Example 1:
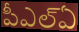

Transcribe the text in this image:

పీఎల్ఏ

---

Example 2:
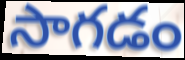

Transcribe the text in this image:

సాగడం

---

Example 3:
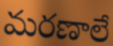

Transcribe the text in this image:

మరణాలే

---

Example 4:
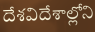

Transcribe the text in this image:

దేశవిదేశాల్లోని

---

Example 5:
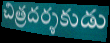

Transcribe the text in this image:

చిత్రదర్శకుడు